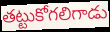
తట్టుకోగలిగాడు